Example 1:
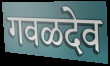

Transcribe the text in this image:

गवळदेव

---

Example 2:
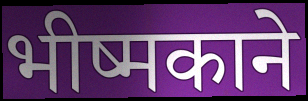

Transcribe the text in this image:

भीष्मकाने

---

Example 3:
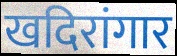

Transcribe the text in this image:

खदिरांगार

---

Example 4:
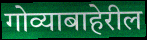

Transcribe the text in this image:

गोव्याबाहेरील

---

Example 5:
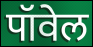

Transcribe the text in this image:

पॉवेल